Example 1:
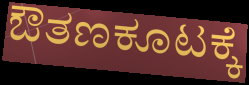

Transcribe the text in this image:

ಔತಣಕೂಟಕ್ಕೆ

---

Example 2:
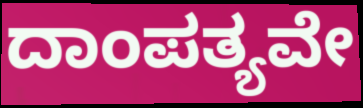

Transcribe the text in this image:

ದಾಂಪತ್ಯವೇ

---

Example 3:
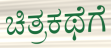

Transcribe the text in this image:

ಚಿತ್ರಕಥೆಗೆ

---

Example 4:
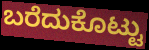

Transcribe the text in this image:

ಬರೆದುಕೊಟ್ಟು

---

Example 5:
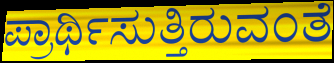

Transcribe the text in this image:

ಪ್ರಾರ್ಥಿಸುತ್ತಿರುವಂತೆ